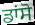
ਡਾਂਸੋ